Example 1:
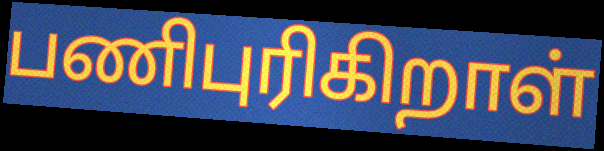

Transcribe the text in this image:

பணிபுரிகிறாள்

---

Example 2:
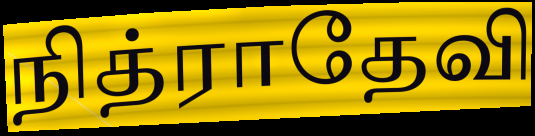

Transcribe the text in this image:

நித்ராதேவி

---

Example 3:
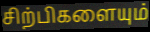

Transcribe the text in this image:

சிற்பிகளையும்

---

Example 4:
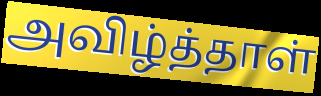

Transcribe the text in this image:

அவிழ்த்தாள்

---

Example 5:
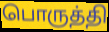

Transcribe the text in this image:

பொருத்தி